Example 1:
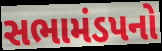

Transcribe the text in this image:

સભામંડપનો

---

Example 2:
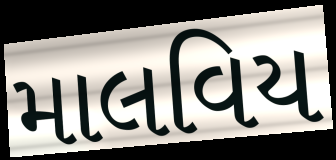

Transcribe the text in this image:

માલવિય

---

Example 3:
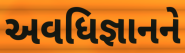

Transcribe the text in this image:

અવધિજ્ઞાનને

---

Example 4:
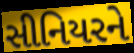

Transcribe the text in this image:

સીનિયરને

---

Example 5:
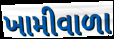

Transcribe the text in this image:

ખામીવાળા